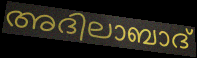
അദിലാബാദ്